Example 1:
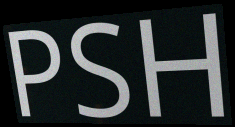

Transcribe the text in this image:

PSH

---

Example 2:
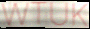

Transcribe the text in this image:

WTUK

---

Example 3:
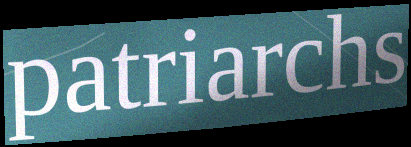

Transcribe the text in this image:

patriarchs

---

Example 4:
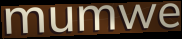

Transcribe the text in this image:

mumwe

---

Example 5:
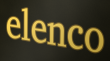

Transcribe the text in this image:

elenco